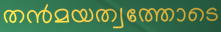
തൻമയത്വത്തോടെ